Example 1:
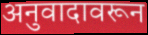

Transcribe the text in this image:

अनुवादावरून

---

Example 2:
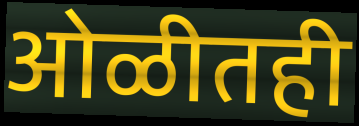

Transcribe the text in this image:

ओळीतही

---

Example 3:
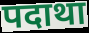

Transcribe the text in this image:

पदाथा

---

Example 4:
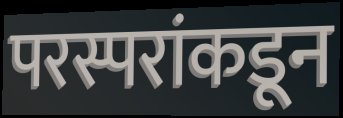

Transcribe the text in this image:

परस्परांकडून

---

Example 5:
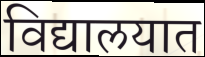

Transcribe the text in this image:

विद्यालयात